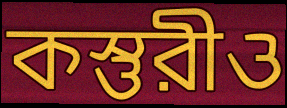
কস্তুরীও